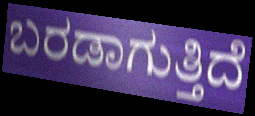
ಬರಡಾಗುತ್ತಿದೆ